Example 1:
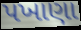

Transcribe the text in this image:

પખાણા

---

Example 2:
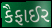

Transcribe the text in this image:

કૈફાઈર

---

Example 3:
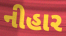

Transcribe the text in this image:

નીહાર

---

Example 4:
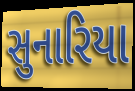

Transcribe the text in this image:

સુનારિયા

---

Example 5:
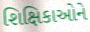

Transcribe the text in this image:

શિક્ષિકાઓને